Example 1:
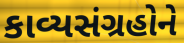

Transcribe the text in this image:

કાવ્યસંગ્રહોને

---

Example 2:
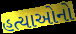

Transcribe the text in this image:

હત્યાઓનો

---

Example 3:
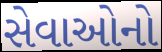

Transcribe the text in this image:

સેવાઓનો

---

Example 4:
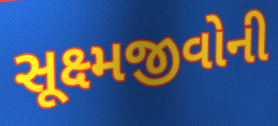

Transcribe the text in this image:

સૂક્ષ્મજીવોની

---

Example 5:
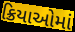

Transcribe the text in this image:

ક્રિયાઓમાં